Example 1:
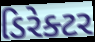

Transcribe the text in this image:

ડિરેક્ટર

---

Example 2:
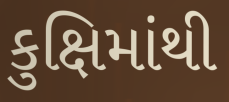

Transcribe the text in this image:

કુક્ષિમાંથી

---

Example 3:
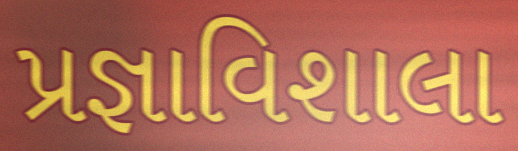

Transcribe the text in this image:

પ્રજ્ઞાવિશાલા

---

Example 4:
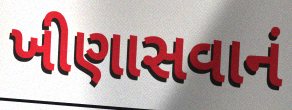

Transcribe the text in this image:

ખીણાસવાનં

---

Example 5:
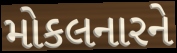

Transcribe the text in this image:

મોકલનારને